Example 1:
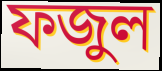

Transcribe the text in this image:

ফজুল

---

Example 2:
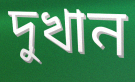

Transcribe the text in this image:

দুখান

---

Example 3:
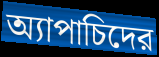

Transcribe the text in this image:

অ্যাপাচিদের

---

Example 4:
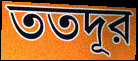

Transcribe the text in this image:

ততদূর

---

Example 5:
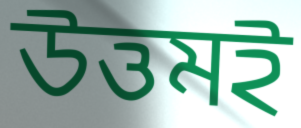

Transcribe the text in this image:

উত্তমই